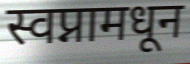
स्वप्नामधून